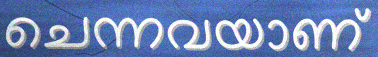
ചെന്നവയാണ്